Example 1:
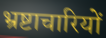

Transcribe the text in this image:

भ्रष्टाचारियों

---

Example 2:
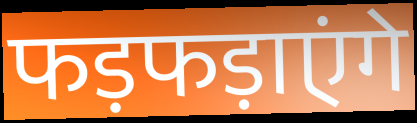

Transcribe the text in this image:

फड़फड़ाएंगे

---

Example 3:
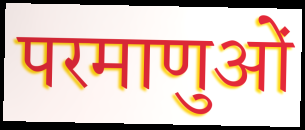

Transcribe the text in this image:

परमाणुओं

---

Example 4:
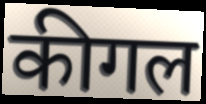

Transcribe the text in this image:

कीगल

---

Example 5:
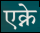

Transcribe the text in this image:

एक्ने